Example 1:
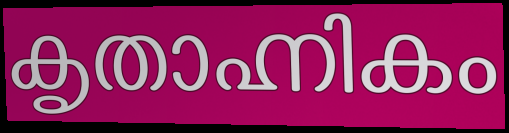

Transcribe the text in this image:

കൃതാഹ്നികം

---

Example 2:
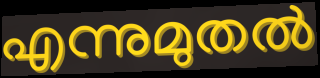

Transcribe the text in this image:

എന്നുമുതൽ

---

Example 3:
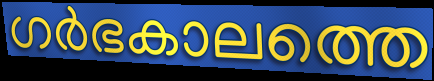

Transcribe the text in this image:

ഗർഭകാലത്തെ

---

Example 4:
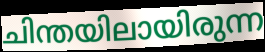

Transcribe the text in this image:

ചിന്തയിലായിരുന്ന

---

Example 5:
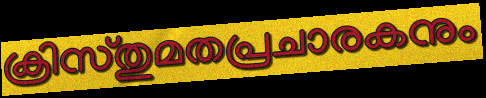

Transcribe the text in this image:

ക്രിസ്തുമതപ്രചാരകനും